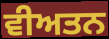
ਵੀਅਤਨ